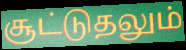
சூட்டுதலும்